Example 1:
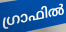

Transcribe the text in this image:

ഗ്രാഫിൽ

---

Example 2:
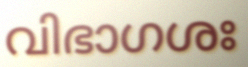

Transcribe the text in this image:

വിഭാഗശഃ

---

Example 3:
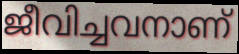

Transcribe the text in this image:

ജീവിച്ചവനാണ്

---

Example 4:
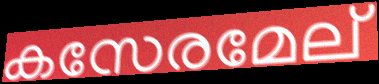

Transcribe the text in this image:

കസേരമേല്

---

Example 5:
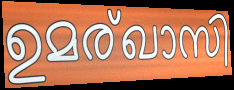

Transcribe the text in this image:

ഉമര്ഖാസി